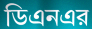
ডিএনএর